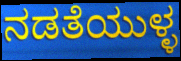
ನಡತೆಯುಳ್ಳ